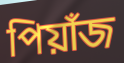
পিয়াঁজ